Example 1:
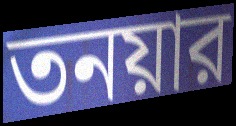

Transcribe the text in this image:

তনয়ার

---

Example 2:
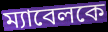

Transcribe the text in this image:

ম্যাবেলকে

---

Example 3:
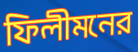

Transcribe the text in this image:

ফিলীমনের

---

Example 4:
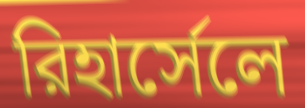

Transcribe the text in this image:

রিহার্সেলে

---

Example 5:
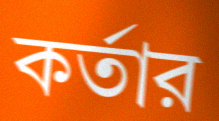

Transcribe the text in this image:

কর্তার